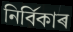
নিৰ্বিকাৰ